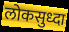
लोकसुध्दा